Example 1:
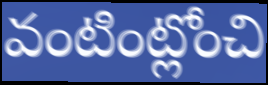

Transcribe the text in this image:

వంటింట్లోంచి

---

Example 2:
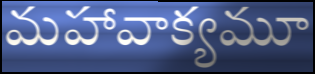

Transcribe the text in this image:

మహావాక్యమూ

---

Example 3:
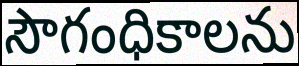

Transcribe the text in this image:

సౌగంధికాలను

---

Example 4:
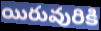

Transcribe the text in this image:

యిరువురికి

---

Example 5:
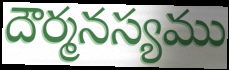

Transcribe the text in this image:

దౌర్మనస్యము